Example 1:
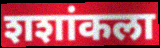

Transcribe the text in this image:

शशांकला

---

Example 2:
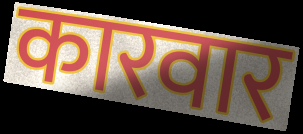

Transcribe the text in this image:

कारवार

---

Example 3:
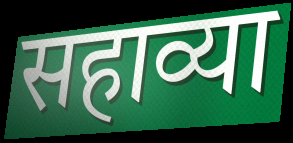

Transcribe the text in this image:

सहाव्या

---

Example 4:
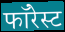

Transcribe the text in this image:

फॉरेस्ट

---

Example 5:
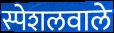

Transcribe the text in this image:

स्पेशलवाले